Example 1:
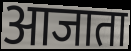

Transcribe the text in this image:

आजाता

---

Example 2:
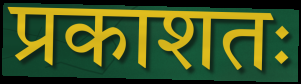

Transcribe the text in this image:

प्रकाशतः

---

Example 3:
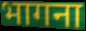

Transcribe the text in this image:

भागना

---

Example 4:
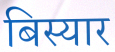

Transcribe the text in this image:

बिस्यार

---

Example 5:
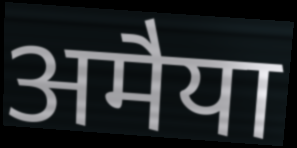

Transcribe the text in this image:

अमैया